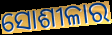
ସୋଶୀଳାର